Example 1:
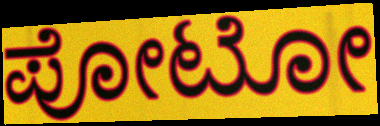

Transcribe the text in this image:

ಪೋಟೋ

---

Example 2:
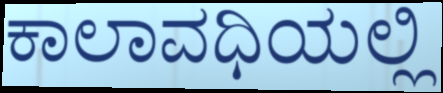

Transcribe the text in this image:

ಕಾಲಾವಧಿಯಲ್ಲಿ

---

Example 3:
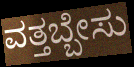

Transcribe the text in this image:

ವತ್ತಬ್ಬೇಸು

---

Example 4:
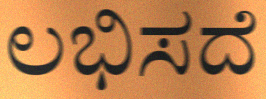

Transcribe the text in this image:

ಲಭಿಸದೆ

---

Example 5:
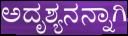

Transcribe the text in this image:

ಅದೃಶ್ಯನನ್ನಾಗಿ